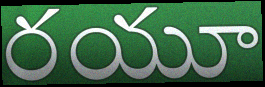
రయూ